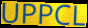
UPPCL